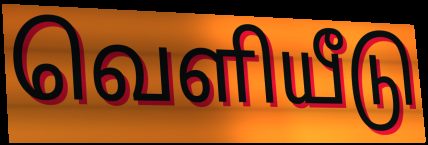
வெளியீடு